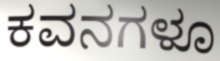
ಕವನಗಳೂ